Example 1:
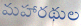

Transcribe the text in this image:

మహారథుల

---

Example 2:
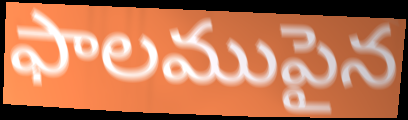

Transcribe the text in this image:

ఫాలముపైన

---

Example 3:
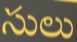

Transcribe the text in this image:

సులు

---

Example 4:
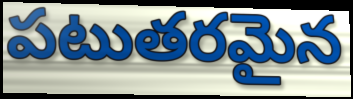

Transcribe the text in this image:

పటుతరమైన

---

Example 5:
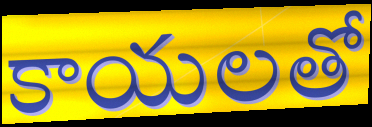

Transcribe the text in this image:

కాయలతో